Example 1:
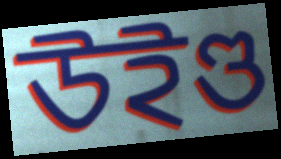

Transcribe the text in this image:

উইণ্ড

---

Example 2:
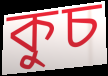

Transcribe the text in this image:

কুচ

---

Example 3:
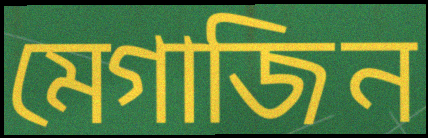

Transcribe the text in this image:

মেগাজিন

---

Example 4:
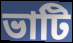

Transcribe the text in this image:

ভাটি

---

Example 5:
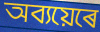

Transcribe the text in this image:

অব্যয়েৰে